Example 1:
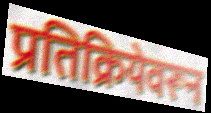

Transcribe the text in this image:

प्रतिक्रियेवरून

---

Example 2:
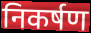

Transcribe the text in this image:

निकर्षण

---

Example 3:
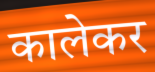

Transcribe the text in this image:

कालेकर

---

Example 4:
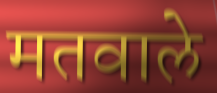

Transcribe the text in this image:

मतवाले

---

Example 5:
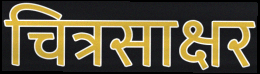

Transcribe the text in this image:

चित्रसाक्षर